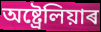
অষ্ট্ৰেলিয়াৰ